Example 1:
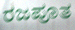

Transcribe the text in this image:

ರಜಪೂತ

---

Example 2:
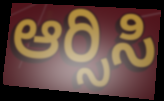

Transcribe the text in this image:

ಆರ್‍ಸಿಸಿ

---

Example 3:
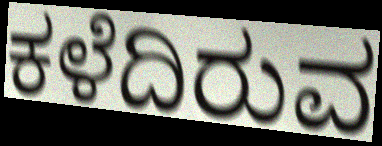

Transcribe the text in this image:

ಕಳೆದಿರುವ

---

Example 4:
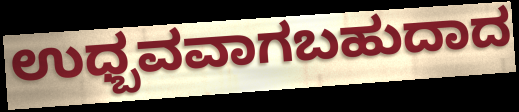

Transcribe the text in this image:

ಉಧ್ಬವವಾಗಬಹುದಾದ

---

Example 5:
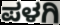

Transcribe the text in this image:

ಪಳಗಿ